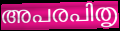
അപരപിതൃ